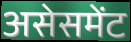
असेसमेंट